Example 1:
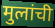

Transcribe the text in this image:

मुलांची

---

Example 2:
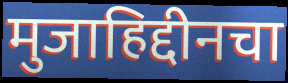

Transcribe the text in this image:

मुजाहिद्दीनचा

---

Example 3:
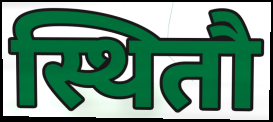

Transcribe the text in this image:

स्थितौ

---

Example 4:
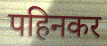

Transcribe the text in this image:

पहिनकर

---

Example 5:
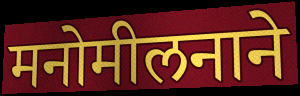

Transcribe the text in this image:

मनोमीलनाने